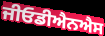
ਜੀਓਡੀਐਨਐਸ